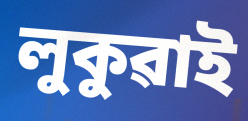
লুকুৱাই